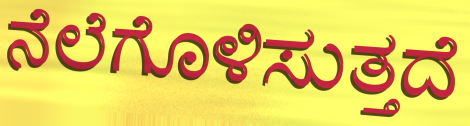
ನೆಲೆಗೊಳಿಸುತ್ತದೆ